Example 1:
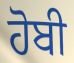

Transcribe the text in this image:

ਹੋਬੀ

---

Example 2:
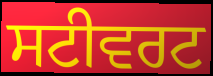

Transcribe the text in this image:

ਸਟੀਵਰਟ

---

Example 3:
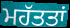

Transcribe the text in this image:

ਮਹੱਤਤਾਂ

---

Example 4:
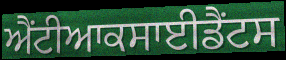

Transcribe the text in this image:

ਐਂਟੀਆਕਸਾਈਡੈਂਟਸ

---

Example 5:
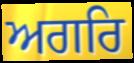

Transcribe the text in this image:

ਅਗਰਿ